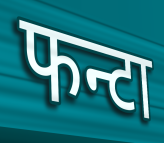
फन्टा